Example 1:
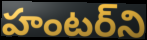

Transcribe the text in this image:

హంటర్‌ని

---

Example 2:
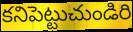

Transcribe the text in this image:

కనిపెట్టుచుండిరి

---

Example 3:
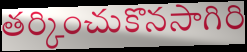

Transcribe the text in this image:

తర్కించుకొనసాగిరి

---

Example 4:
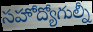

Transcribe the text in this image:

సహోద్యోగుల్నీ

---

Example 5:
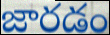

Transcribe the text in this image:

జారడం